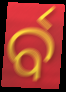
ର୍ବ